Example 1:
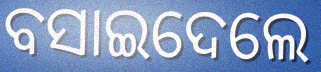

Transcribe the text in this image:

ବସାଇଦେଲେ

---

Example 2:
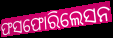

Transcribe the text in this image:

ଫସଫୋରିଲେସନ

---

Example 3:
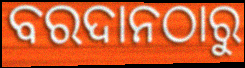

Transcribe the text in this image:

ବରଦାନଠାରୁ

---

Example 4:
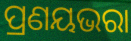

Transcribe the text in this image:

ପ୍ରଣୟଭରା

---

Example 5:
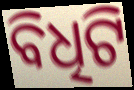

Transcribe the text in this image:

ବିଧିଟି